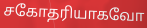
சகோதரியாகவோ